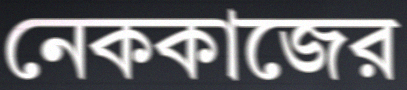
নেককাজের